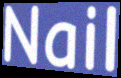
Nail